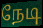
நேடி